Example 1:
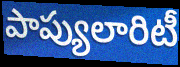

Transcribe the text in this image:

పాప్యులారిటీ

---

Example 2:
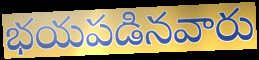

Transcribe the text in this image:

భయపడినవారు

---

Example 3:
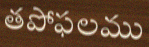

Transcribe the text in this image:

తపోఫలము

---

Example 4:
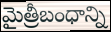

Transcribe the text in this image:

మైత్రీబంధాన్ని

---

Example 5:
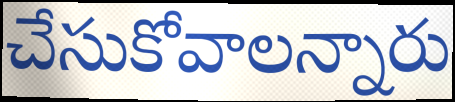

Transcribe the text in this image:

చేసుకోవాలన్నారు